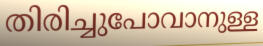
തിരിച്ചുപോവാനുള്ള